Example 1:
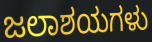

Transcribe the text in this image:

ಜಲಾಶಯಗಳು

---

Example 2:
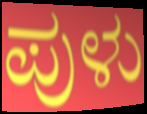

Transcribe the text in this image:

ಪುಳು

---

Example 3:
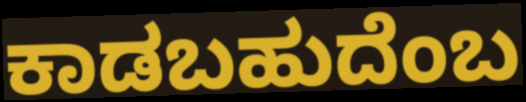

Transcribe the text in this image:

ಕಾಡಬಹುದೆಂಬ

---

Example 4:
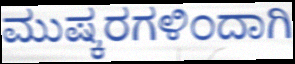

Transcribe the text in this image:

ಮುಷ್ಕರಗಳಿಂದಾಗಿ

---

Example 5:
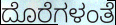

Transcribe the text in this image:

ದೊರೆಗಳಂತೆ